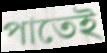
পাতেই